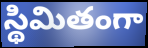
స్థిమితంగా